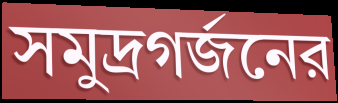
সমুদ্রগর্জনের